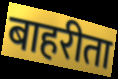
बाहरीता